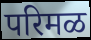
परिमळ